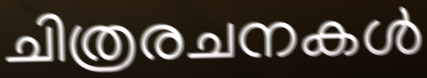
ചിത്രരചനകൾ